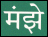
मंझे